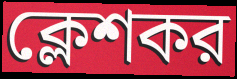
ক্লেশকর